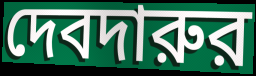
দেবদারুর